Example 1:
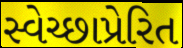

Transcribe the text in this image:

સ્વેચ્છાપ્રેરિત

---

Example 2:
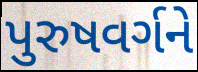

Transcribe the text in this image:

પુરુષવર્ગને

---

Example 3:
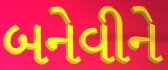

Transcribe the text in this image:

બનેવીને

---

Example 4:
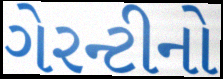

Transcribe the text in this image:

ગેરન્ટીનો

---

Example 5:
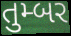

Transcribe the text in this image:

તુમ્બર